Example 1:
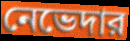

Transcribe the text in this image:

নেভেদার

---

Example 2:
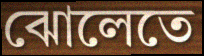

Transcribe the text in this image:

ঝোলেতে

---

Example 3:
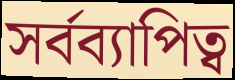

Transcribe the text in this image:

সর্বব্যাপিত্ব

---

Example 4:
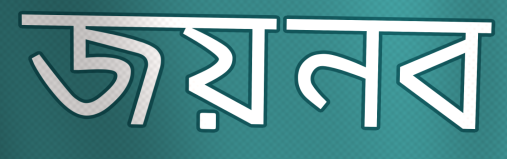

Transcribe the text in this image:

জয়নব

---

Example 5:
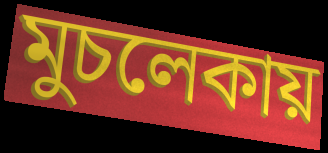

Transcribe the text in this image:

মুচলেকায়